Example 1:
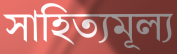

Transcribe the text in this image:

সাহিত্যমূল্য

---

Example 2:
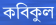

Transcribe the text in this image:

কবিকুল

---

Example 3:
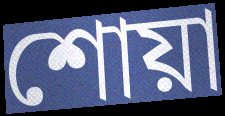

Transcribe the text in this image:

শোয়া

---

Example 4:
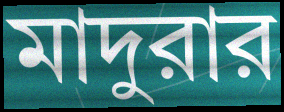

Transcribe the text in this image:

মাদুরার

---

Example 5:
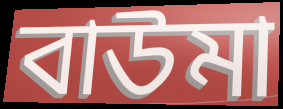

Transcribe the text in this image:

বাউমা